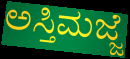
ಅಸ್ತಿಮಜ್ಜೆ